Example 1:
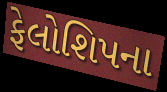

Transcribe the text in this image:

ફેલોશિપના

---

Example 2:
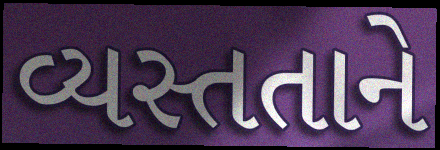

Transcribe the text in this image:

વ્યસ્તતાને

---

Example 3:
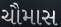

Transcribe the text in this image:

ચૌમાસ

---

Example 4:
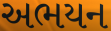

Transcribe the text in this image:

અભયન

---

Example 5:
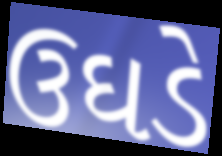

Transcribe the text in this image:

ઉઘડે